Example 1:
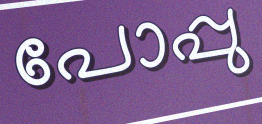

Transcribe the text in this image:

പോപ്പു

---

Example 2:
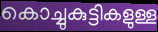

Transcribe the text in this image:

കൊച്ചുകുട്ടികളുള്ള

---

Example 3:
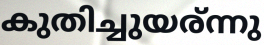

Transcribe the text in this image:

കുതിച്ചുയര്ന്നു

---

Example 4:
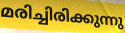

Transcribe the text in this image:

മരിച്ചിരിക്കുന്നു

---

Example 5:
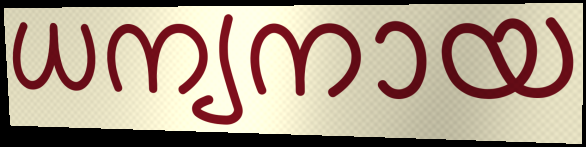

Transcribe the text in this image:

ധന്യനായ